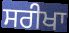
ਸਰੀਖਾ